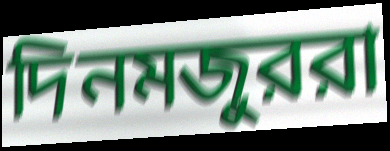
দিনমজুররা